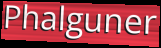
Phalguner